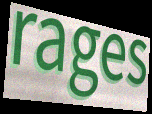
rages